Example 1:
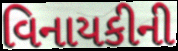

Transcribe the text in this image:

વિનાયકીની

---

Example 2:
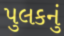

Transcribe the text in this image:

પુલકનું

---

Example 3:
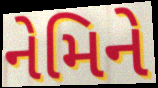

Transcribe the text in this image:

નેમિને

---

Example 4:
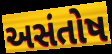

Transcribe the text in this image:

અસંતોષ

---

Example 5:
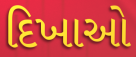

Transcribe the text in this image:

દિખાઓ